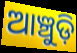
ଆଞ୍ଚୁଡ଼ି